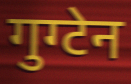
गुग्टेन